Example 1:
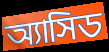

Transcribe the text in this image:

অ্যাসিড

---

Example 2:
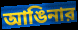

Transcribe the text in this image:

আঙিনার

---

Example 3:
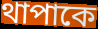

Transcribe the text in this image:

থাপাকে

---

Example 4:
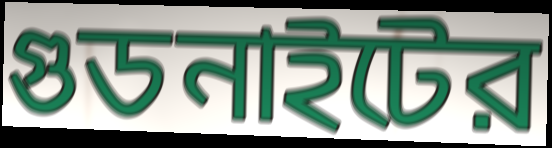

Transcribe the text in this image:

গুডনাইটের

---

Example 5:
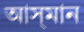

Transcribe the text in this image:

আস্‌মান